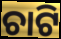
ଚାଟି